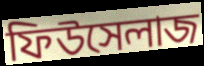
ফিউসেলাজ